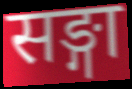
सङ्गा